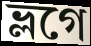
ভ্লগে